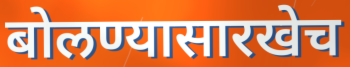
बोलण्यासारखेच